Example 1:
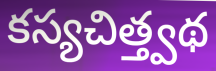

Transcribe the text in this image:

కస్యచిత్త్వథ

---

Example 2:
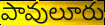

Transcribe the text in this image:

పావులూరు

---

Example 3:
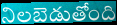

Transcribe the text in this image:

నిలబెడుతోంది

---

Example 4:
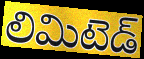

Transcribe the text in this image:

లిమిటెడ్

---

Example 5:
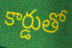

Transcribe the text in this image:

కార్డుతో